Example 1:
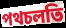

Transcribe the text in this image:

পথচলতি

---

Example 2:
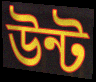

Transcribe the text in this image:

উন্ট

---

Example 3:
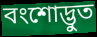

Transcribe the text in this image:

বংশোদ্ভুত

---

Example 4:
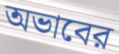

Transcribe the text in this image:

অভাবের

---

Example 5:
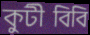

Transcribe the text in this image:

কুটীবিবি